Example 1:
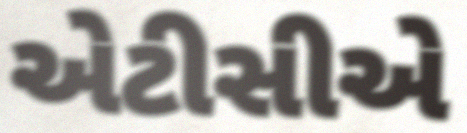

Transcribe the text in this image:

એટીસીએ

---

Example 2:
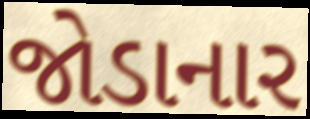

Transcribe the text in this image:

જોડાનાર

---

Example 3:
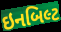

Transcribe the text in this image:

ઇનબિલ્ટ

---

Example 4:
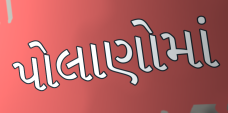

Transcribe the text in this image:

પોલાણોમાં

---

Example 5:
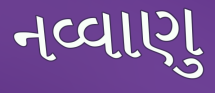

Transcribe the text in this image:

નવ્વાણુ